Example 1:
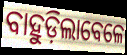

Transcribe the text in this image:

ବାହୁଡ଼ିଲାବେଳେ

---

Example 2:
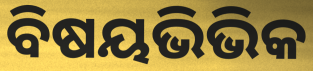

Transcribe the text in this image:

ବିଷୟଭିଭିକ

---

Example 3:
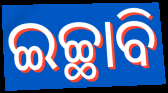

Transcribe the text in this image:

ଇଚ୍ଛାବି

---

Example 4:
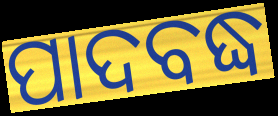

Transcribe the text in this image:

ପାଦବଦ୍ଧ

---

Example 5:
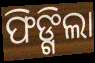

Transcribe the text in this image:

ଫିଙ୍ଗିଲା